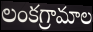
లంకగ్రామాల